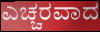
ಎಚ್ಚರವಾದ